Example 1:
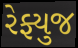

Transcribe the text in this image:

રેફ્યુજ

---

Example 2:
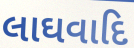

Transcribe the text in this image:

લાઘવાદિ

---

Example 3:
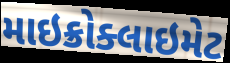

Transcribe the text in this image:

માઇક્રોક્લાઇમેટ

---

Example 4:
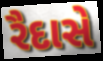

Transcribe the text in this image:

રૈદાસે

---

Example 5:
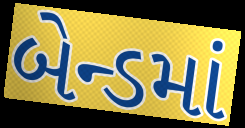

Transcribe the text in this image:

બેન્ડમાં